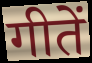
गीतें